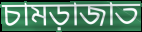
চামড়াজাত